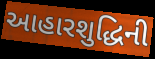
આહારશુદ્ધિની